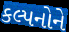
કલ્પનોને